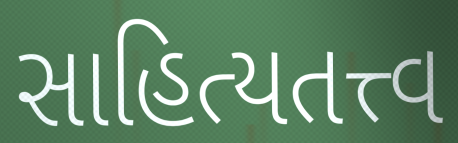
સાહિત્યતત્ત્વ